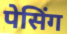
पेसिंग